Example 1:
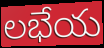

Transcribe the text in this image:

లభేయ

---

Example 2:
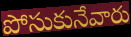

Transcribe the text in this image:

పోసుకునేవారు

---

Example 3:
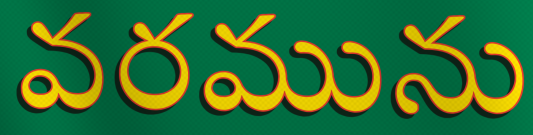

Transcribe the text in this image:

వరమును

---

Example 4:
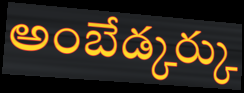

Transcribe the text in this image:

అంబేడ్కర్కు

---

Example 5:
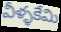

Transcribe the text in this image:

వీళ్ళకేమి